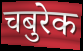
चबुरेक